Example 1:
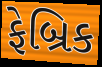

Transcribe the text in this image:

ફેબ્રિક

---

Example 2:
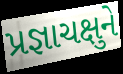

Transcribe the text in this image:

પ્રજ્ઞાચક્ષુને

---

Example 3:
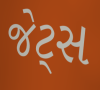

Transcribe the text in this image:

જેટ્સ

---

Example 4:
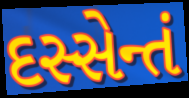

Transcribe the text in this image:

દસ્સેન્તં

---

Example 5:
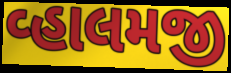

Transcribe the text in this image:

વ્હાલમજી